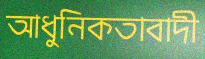
আধুনিকতাবাদী